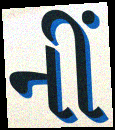
નીં